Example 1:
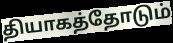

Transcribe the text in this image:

தியாகத்தோடும்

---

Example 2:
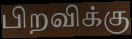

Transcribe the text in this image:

பிறவிக்கு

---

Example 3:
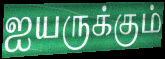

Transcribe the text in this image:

ஐயருக்கும்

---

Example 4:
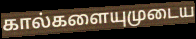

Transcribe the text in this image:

கால்களையுமுடைய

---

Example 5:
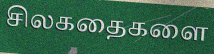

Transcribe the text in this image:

சிலகதைகளை